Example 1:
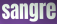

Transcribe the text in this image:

sangre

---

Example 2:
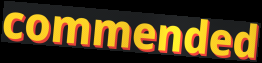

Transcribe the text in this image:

commended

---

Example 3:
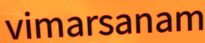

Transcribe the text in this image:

vimarsanam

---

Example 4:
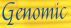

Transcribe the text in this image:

Genomic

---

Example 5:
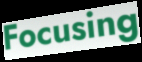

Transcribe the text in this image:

Focusing